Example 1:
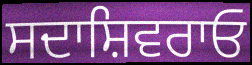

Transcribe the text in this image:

ਸਦਾਸ਼ਿਵਰਾਓ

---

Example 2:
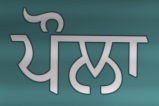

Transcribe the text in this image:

ਪੌਲਾ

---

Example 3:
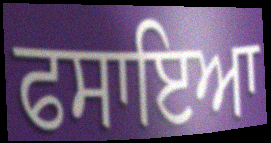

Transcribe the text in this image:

ਫਸਾਇਆ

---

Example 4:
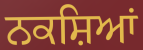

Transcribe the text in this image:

ਨਕਸ਼ਿਆਂ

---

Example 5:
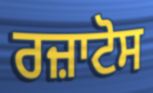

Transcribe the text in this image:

ਰਜ਼ਾਟੋਸ